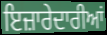
ਇਜ਼ਾਰੇਦਾਰੀਆਂ